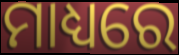
ମାଧ୍ୟରେ